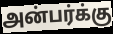
அன்பர்க்கு